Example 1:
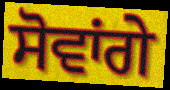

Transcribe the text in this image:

ਸੋਵਾਂਗੇ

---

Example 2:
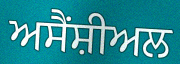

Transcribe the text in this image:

ਅਸੈਂਸ਼ੀਅਲ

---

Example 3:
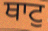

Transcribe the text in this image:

ਥਾਟੁ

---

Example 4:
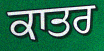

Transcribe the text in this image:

ਕਾਤਰ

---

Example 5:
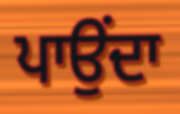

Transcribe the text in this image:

ਪਾਉਂਦਾ